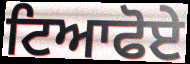
ਟਿਆਫੋਏ